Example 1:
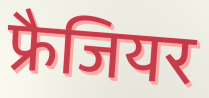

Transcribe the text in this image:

फ्रैजियर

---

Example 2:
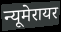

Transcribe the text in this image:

न्यूमेरायर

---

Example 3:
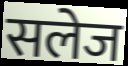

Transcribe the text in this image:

सलेज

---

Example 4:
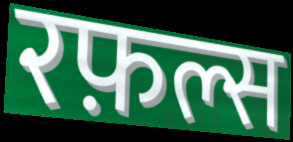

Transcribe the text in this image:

रफ़ल्स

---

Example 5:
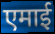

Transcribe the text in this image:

एमाई